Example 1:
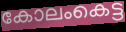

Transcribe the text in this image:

കോലംകെട്ട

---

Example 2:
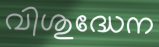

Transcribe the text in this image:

വിശുദ്ധേന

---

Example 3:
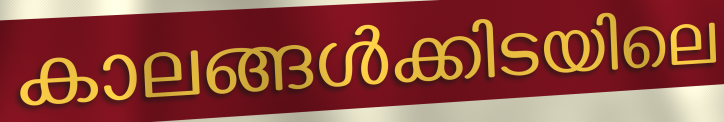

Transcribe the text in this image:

കാലങ്ങൾക്കിടയിലെ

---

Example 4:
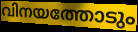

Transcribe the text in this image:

വിനയത്തോടും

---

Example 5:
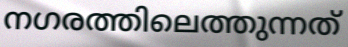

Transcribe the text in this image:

നഗരത്തിലെത്തുന്നത്